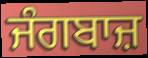
ਜੰਗਬਾਜ਼